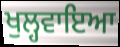
ਖੁਲ੍ਹਵਾਇਆ